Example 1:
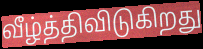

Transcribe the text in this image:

வீழ்த்திவிடுகிறது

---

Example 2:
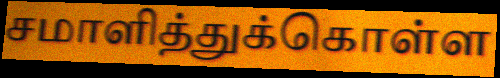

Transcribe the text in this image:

சமாளித்துக்கொள்ள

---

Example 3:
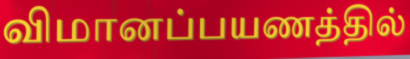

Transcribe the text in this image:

விமானப்பயணத்தில்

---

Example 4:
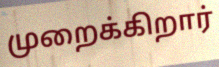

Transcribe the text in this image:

முறைக்கிறார்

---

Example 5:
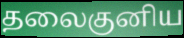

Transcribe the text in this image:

தலைகுனிய